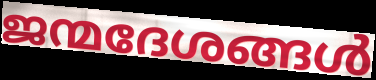
ജന്മദേശങ്ങൾ